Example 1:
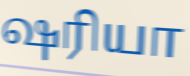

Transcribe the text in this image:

ஷரியா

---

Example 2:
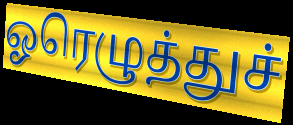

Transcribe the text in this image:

ஓரெழுத்துச்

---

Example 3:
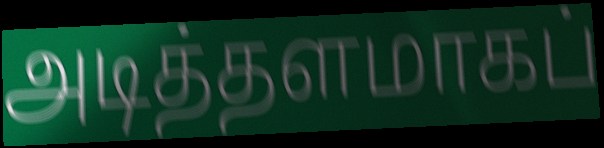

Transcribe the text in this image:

அடித்தளமாகப்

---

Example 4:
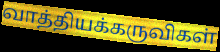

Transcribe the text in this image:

வாத்தியக்கருவிகள்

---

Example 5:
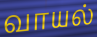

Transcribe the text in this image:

வாயல்